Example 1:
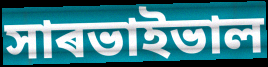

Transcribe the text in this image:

সাৰভাইভাল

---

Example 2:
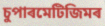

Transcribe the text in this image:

চুপাৰমেটিজিমৰ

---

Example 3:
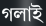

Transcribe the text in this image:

গলাই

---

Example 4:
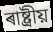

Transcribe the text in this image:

ৰাষ্ট্ৰীয়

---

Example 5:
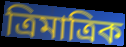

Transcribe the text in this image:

ত্ৰিমাত্ৰিক